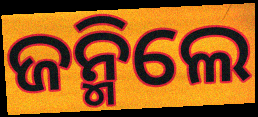
ଜନ୍ମିଲେ